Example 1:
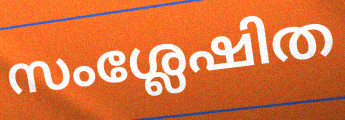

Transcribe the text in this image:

സംശ്ലേഷിത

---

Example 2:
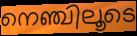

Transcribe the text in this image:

നെഞ്ചിലൂടെ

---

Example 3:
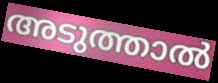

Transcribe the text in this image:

അടുത്താൽ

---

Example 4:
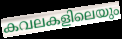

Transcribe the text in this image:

കവലകളിലെയും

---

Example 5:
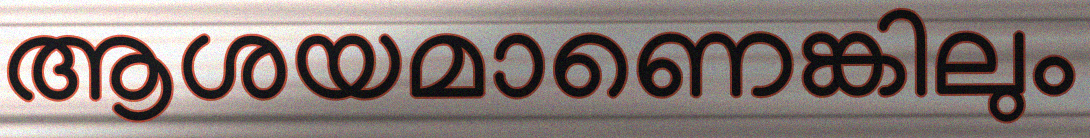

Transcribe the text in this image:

ആശയമാണെങ്കിലും